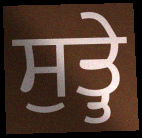
ਸੁਤ੍ਤੇ